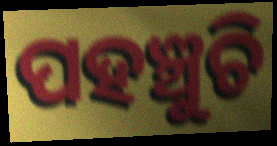
ପହଞ୍ଚୁଚି